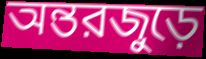
অন্তরজুড়ে